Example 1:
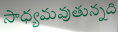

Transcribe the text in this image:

సాధ్యమవుతున్నది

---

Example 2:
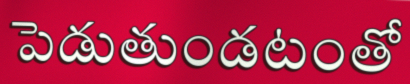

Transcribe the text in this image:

పెడుతుండటంతో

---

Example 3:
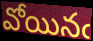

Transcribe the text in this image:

వోయినఁ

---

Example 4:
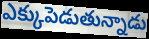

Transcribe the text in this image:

ఎక్కుపెడుతున్నాడు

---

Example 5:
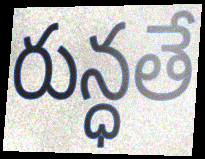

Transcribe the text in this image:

రున్ధతే